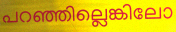
പറഞ്ഞില്ലെങ്കിലോ